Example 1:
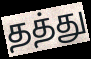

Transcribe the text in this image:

தத்து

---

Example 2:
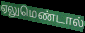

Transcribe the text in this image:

ஏலுமெண்டால்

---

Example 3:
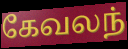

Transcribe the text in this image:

கேவலந்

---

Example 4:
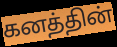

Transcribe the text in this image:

கனத்தின்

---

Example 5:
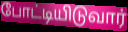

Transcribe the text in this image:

போட்டியிடுவார்